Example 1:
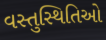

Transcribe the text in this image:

વસ્તુસ્થિતિઓ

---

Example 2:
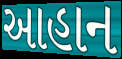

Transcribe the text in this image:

આહાન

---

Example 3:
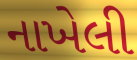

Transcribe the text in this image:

નાખેલી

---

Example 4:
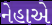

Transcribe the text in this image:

નેહાએ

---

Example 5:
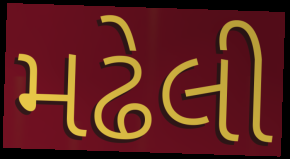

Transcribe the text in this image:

મઢેલી